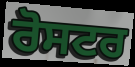
ਰੋਸਟਰ